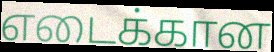
எடைக்கான